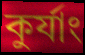
কুর্যাং